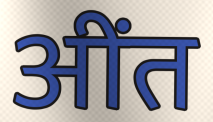
अींत